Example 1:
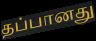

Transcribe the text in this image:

தப்பானது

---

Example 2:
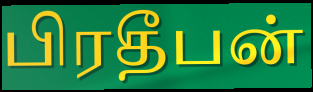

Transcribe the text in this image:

பிரதீபன்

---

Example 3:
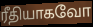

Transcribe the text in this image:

ரீதியாகவோ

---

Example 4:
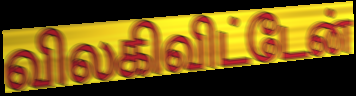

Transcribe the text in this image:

விலகிவிட்டேன்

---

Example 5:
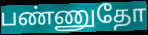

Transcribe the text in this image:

பண்ணுதோ